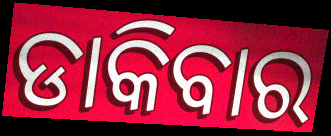
ଡାକିବାର